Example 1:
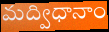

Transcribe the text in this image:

మద్విధానాం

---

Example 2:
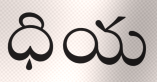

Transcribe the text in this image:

ధియ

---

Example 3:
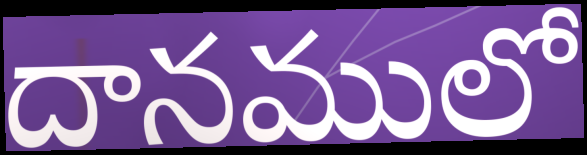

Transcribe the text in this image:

దానములో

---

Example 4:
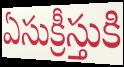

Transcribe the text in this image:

ఏసుక్రీస్తుకి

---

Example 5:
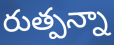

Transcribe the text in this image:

రుత్పన్నా